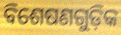
ବିଶେଷଣଗୁଡ଼ିକ